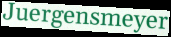
Juergensmeyer